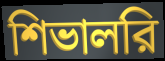
শিভালরি